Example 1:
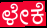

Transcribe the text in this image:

ಳೇಕೆ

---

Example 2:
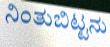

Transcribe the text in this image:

ನಿಂತುಬಿಟ್ಟನು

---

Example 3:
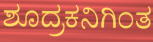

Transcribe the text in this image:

ಶೂದ್ರಕನಿಗಿಂತ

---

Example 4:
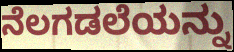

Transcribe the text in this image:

ನೆಲಗಡಲೆಯನ್ನು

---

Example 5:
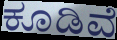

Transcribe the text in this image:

ಕೂಡಿವೆ